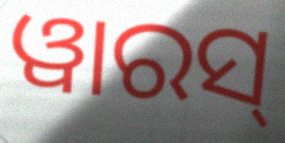
ୱାରସ୍